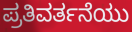
ಪ್ರತಿವರ್ತನೆಯು